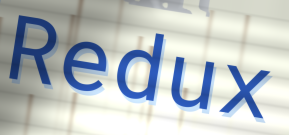
Redux